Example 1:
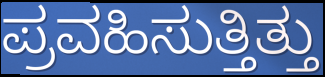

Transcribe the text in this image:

ಪ್ರವಹಿಸುತ್ತಿತ್ತು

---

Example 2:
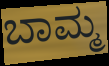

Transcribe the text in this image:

ಬಾಮ್ಮ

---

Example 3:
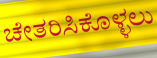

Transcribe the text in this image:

ಚೇತರಿಸಿಕೊಳ್ಳಲು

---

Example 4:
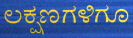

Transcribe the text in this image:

ಲಕ್ಷಣಗಳಿಗೂ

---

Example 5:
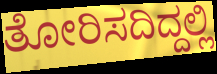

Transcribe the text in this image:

ತೋರಿಸದಿದ್ದಲ್ಲಿ